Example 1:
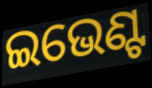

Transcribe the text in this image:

ଇଭେଣ୍ଟ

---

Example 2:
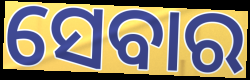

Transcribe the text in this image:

ସେବାର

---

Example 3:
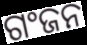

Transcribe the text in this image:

ଗଂଜନ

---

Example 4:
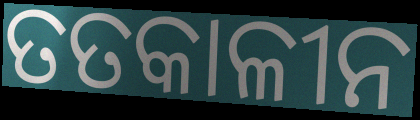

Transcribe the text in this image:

ତତକାଳୀନ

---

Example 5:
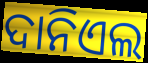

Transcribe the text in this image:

ଦାନିଏଲ